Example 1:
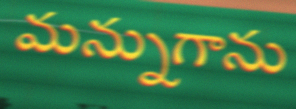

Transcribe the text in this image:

మన్నుగాను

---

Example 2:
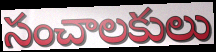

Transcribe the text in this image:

సంచాలకులు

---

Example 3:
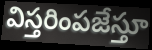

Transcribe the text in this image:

విస్తరింపజేస్తూ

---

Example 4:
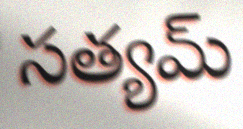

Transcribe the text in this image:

సత్యమ్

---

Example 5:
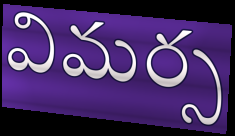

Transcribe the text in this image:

విమర్స